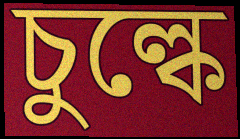
চুল্কে